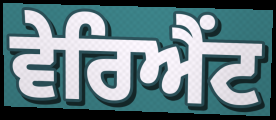
ਵੇਰਿਐਂਟ